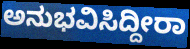
ಅನುಭವಿಸಿದ್ದೀರಾ